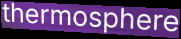
thermosphere